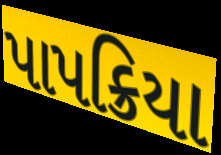
પાપક્રિયા